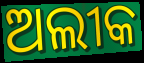
ଅଲୀକ